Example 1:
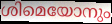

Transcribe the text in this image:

ശിമെയോനും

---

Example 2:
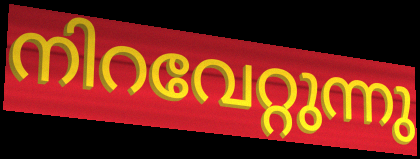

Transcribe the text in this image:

നിറവേറ്റുന്നു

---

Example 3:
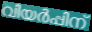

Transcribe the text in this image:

വിയർപ്പിന്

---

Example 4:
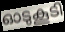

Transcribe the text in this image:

ഓടുകൂടി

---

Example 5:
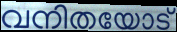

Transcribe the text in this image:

വനിതയോട്